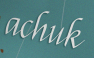
achuk